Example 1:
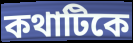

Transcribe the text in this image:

কথাটিকে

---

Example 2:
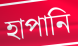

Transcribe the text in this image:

হাপানি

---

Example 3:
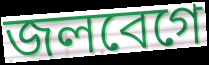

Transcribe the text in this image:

জলবেগে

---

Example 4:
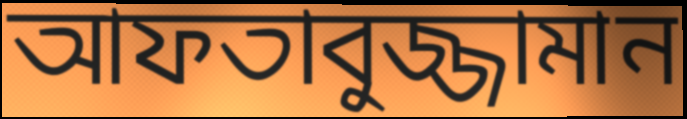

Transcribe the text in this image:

আফতাবুজ্জামান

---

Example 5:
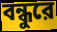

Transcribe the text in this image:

বন্ধুরে